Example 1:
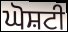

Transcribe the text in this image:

ਘੋਸ਼ਟੀ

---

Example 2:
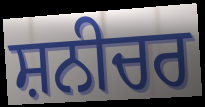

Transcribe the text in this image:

ਸ਼ਨੀਚਰ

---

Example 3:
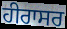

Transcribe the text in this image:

ਹੀਰਾਸਰ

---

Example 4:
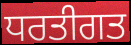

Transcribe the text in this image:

ਧਰਤੀਗਤ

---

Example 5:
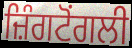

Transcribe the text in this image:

ਜ਼ਿੰਗਟੋਂਗਲੀ